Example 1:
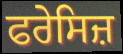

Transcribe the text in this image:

ਫਰੇਸਿਜ਼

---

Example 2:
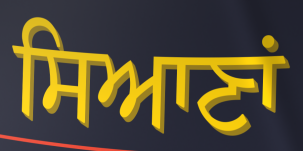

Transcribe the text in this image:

ਸਿਆਣਾਂ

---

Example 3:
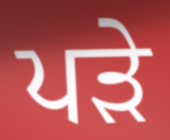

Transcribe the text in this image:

ਪੜੇ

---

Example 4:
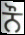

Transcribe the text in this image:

ਨੌ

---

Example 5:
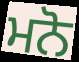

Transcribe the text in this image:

ਮਨੋ